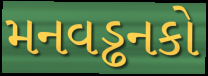
મનવડ્ઢનકો